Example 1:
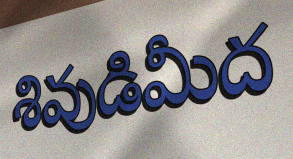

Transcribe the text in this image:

శివుడిమీద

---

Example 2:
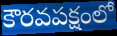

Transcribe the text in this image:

కౌరవపక్షంలో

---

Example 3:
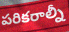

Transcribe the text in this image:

పరికరాల్నీ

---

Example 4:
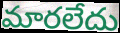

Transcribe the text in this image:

మారలేదు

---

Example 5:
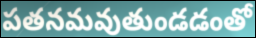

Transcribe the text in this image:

పతనమవుతుండడంతో